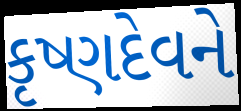
કૃષ્ણદેવને